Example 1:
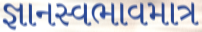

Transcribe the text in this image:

જ્ઞાનસ્વભાવમાત્ર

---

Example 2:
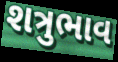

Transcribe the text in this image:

શત્રુભાવ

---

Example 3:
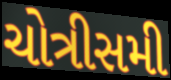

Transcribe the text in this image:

ચોત્રીસમી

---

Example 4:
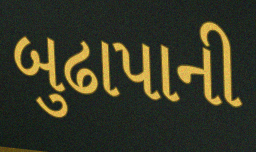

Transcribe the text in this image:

બુઢાપાની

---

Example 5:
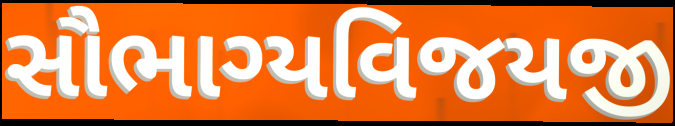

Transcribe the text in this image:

સૌભાગ્યવિજયજી